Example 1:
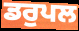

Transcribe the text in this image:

ਡਰੁਪਲ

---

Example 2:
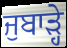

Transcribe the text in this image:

ਜੁਬਾੜ੍ਹੇ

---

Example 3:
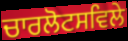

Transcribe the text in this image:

ਚਾਰਲੋਟਸਵਿਲੇ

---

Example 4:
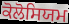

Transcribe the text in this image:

ਕੋਲੋਸਿਯਮ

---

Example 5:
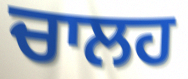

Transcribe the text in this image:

ਚਾਲਹ